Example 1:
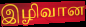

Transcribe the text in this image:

இழிவான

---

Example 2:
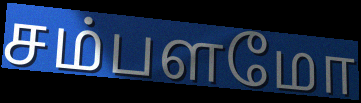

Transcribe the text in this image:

சம்பளமோ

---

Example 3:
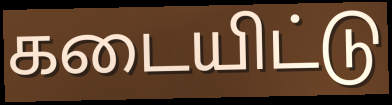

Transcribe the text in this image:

கடையிட்டு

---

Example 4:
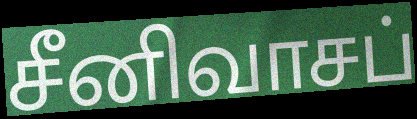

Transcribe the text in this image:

சீனிவாசப்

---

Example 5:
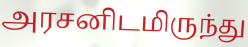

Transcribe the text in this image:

அரசனிடமிருந்து